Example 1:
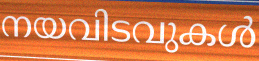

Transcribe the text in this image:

നയവിടവുകൾ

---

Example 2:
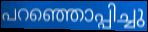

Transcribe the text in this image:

പറഞ്ഞൊപ്പിച്ചു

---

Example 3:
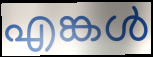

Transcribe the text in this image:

എങ്കൾ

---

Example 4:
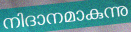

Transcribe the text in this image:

നിദാനമാകുന്നു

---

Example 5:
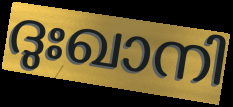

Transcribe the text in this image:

ദുഃഖാനി